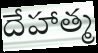
దేహాత్మ